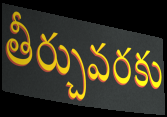
తీర్చువరకు